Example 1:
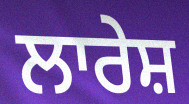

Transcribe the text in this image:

ਲਾਰੇਸ਼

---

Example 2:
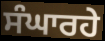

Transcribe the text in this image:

ਸੰਘਾਰਹੇ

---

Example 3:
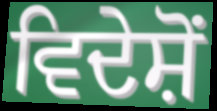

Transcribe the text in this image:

ਵਿਦੇਸ਼ੋਂ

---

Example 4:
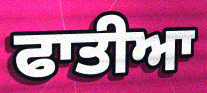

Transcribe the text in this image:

ਫਾਤੀਆ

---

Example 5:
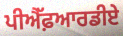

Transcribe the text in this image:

ਪੀਐੱਫ਼ਆਰਡੀਏ